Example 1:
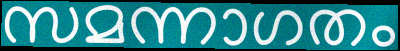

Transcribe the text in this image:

സമന്നാഗതം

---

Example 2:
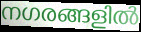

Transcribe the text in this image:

നഗരങ്ങളിൽ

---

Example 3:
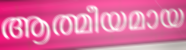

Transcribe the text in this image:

ആത്മീയമായ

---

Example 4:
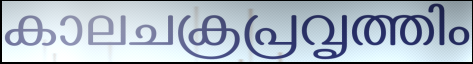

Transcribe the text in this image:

കാലചക്രപ്രവൃത്തിം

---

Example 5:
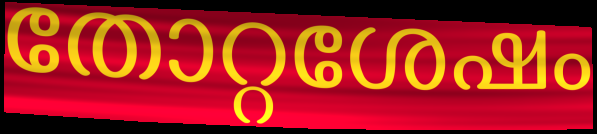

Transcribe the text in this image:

തോറ്റശേഷം